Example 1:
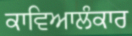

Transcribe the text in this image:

ਕਾਵਿਆਲੰਕਾਰ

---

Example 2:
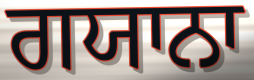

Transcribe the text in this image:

ਗਯਾਨਾ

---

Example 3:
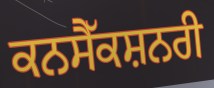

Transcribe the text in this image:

ਕਨਸੈੱਕਸ਼ਨਰੀ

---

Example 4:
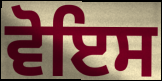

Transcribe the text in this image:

ਵੋਇਸ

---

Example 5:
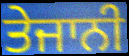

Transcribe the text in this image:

ਤੇਜਾਨੀ